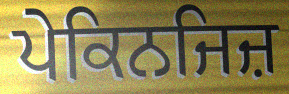
ਪੇਕਿਨਜਿਜ਼